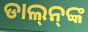
ଡାଲ୍‌ନ୍‌ଙ୍କ